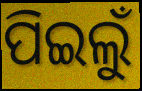
ପିଇଲୁଁ